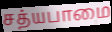
சத்யபாமை